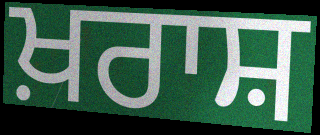
ਖ਼ਰਾਸ਼